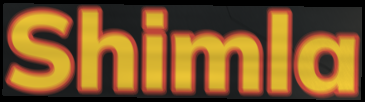
Shimla